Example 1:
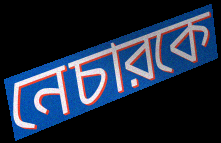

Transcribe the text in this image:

নেচারকে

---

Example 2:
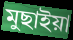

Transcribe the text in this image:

মুছাইয়া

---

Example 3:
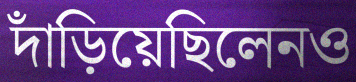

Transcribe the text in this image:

দাঁড়িয়েছিলেনও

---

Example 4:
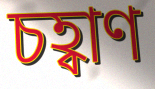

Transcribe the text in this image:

চহ্বাণ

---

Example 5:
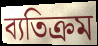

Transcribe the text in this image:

ব্যতিক্রম